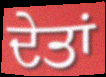
ਦੇਤਾਂ